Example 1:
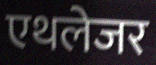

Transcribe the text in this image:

एथलेजर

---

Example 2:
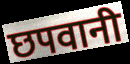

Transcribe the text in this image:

छपवानी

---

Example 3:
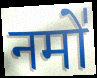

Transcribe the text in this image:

नमो॑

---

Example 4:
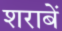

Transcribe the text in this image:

शराबें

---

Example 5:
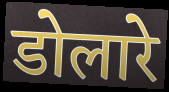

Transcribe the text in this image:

डोलारे